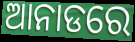
ଆନାଡରେ